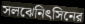
সলঝেনিৎসিনের